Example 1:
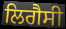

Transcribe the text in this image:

ਲਿਗੈਸੀ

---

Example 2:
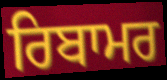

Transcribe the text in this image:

ਰਿਬਾਮਰ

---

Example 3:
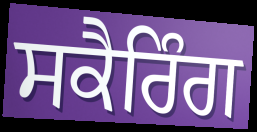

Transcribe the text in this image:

ਸਕੈਰਿੰਗ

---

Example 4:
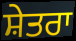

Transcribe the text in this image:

ਸ਼ੇਤਰਾ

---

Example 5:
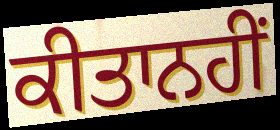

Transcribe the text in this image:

ਕੀਤਾਨਹੀਂ